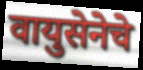
वायुसेनेचे